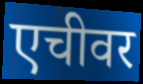
एचीवर